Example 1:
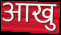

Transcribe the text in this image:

आखु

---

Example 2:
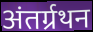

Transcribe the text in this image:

अंतर्ग्रथन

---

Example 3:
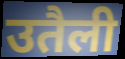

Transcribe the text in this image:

उतैली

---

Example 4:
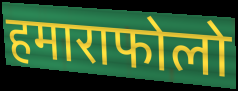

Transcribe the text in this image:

हमाराफोलो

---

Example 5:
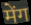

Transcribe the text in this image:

मेंग